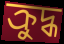
ক্ৰুদ্ধ